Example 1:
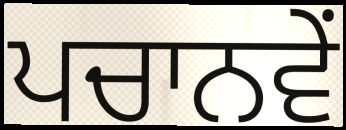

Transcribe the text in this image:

ਪਚਾਨਵੇਂ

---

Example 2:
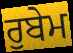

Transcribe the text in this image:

ਰੁਬੇਮ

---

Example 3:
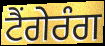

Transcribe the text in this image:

ਟੈਂਗੇਰੰਗ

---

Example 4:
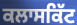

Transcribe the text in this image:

ਕਲਾਸਕਿੱਟ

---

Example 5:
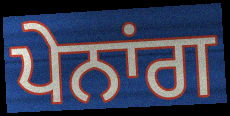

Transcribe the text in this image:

ਪੇਨਾਂਗ